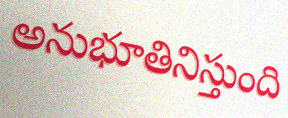
అనుభూతినిస్తుంది